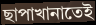
ছাপাখানাতেই